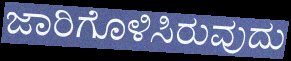
ಜಾರಿಗೊಳಿಸಿರುವುದು